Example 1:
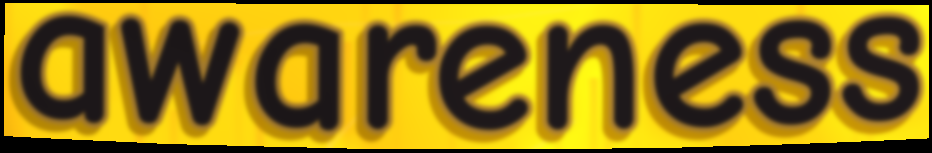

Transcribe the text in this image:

awareness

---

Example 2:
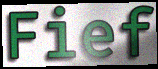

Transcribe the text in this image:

Fief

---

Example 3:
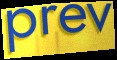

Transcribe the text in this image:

prev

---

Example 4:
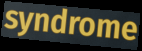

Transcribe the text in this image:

syndrome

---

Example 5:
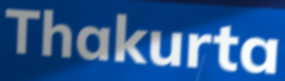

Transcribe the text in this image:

Thakurta